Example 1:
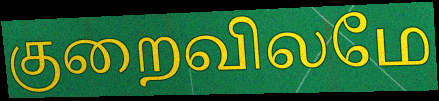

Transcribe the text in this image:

குறைவிலமே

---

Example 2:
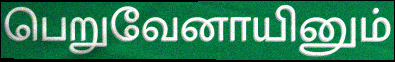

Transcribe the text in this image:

பெறுவேனாயினும்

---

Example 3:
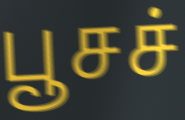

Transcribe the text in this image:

பூசச்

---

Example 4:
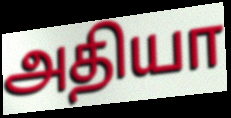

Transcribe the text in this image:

அதியா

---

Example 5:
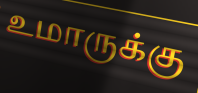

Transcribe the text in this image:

உமாருக்கு